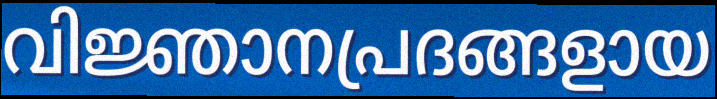
വിജ്ഞാനപ്രദങ്ങളായ